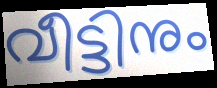
വീട്ടിനും